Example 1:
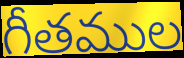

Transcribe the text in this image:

గీతముల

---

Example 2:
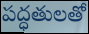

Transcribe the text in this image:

పద్ధతులతో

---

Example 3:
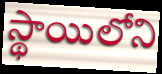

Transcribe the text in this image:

స్థాయిలోని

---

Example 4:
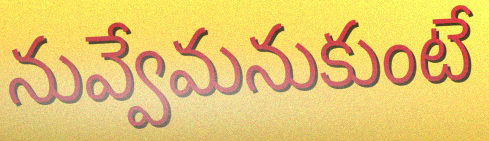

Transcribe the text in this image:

నువ్వేమనుకుంటే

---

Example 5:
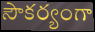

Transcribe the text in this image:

సౌకర్యంగా